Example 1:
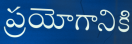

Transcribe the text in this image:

ప్రయోగానికి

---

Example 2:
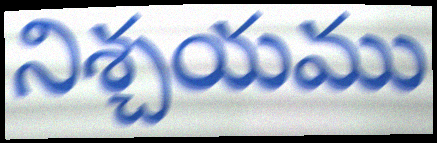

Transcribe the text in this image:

నిశ్చయము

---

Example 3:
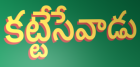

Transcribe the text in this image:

కట్టేసేవాడు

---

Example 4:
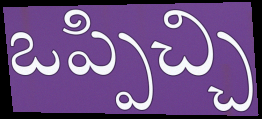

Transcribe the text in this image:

ఒప్పిచ్చి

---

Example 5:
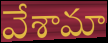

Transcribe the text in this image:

వేశామా